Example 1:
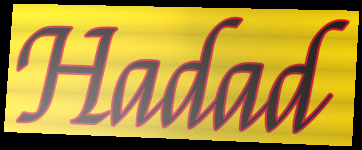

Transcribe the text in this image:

Hadad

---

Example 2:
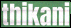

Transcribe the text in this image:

thikani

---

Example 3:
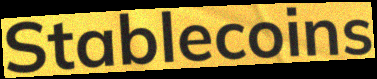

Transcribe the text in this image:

Stablecoins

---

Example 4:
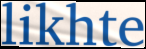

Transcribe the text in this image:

likhte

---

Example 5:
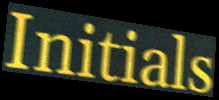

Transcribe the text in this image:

Initials